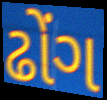
ઢોંગ